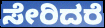
ಸೇರಿದರೆ